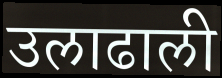
उलाढाली